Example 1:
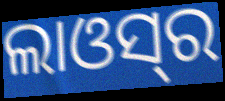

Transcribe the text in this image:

ଲାଓସ୍‌ର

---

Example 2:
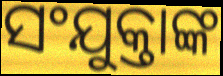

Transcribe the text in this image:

ସଂଯୁକ୍ତାଙ୍କ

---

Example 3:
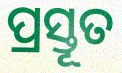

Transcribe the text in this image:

ପ୍ରସ୍ତୂତ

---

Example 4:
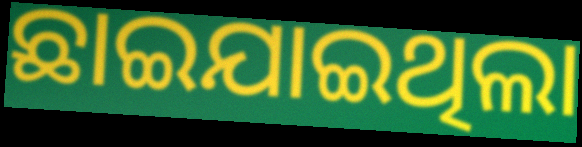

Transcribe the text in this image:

ଛାଇଯାଇଥିଲା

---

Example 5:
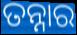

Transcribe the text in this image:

ତନ୍ନାର